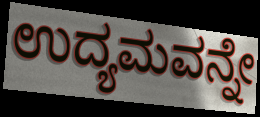
ಉದ್ಯಮವನ್ನೇ